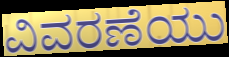
ವಿವರಣೆಯು